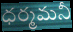
ధర్మమనీ